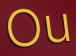
Ou